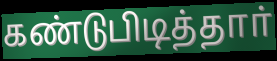
கண்டுபிடித்தார்